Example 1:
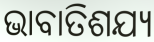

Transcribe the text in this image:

ଭାବାତିଶଯ୍ୟ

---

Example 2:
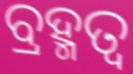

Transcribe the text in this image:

ବ୍ରହ୍ମତ୍ୱ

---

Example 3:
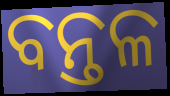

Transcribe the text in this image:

ବନ୍ତଳ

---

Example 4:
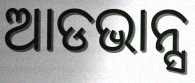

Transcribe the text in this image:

ଆଡଭାନ୍ସ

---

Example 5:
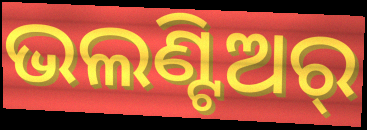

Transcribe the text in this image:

ଭଲଣ୍ଟିଅର୍